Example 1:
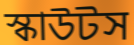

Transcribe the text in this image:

স্কাউটস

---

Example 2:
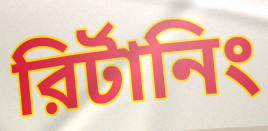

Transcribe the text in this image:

রির্টানিং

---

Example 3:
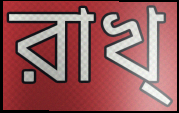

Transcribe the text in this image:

রাখ্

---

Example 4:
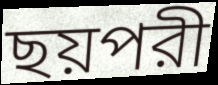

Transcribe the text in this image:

ছয়পরী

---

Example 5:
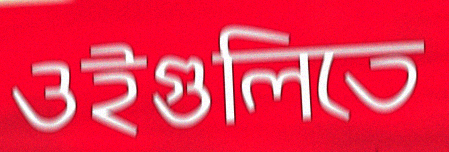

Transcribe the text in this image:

ওইগুলিতে